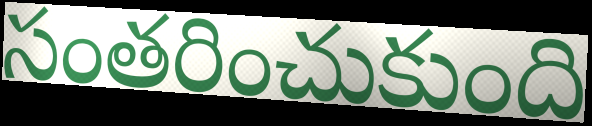
సంతరించుకుంది